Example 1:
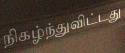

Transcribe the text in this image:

நிகழ்ந்துவிட்டது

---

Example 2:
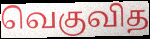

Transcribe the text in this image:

வெகுவித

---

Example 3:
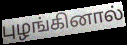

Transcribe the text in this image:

புழங்கினால்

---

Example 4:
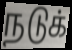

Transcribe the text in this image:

நடுக்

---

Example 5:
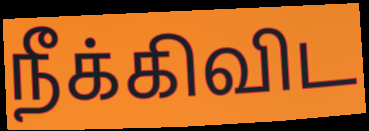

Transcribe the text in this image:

நீக்கிவிட